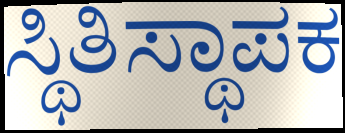
ಸ್ಥಿತಿಸ್ಥಾಪಕ